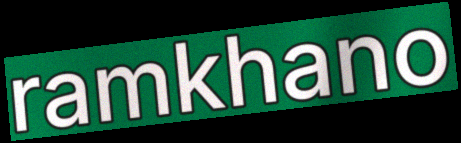
ramkhano